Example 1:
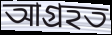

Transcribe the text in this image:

আগ্ৰহত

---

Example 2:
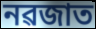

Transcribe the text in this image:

নৱজাত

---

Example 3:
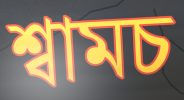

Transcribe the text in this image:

শ্বামচ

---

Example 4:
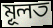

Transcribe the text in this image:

মূলত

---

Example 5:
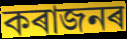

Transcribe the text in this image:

কৰাজনৰ